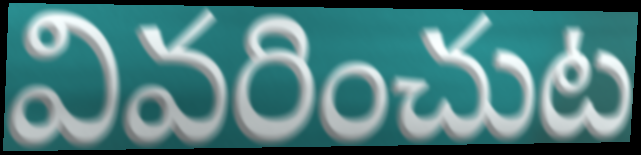
వివరించుట